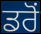
ਡਰੋਂ